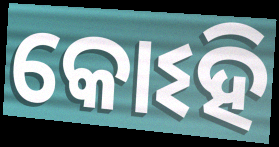
କୋଽହି